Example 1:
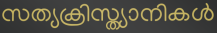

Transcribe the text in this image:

സത്യക്രിസ്ത്യാനികൾ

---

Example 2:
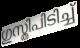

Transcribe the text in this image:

ഗുസ്തിപിടിച്ച്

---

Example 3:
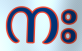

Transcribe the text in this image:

നഃ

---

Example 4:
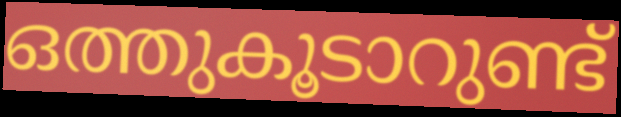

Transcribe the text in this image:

ഒത്തുകൂടാറുണ്ട്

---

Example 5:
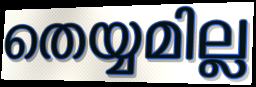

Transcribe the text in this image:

തെയ്യമില്ല